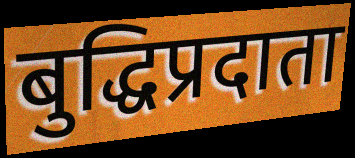
बुद्धिप्रदाता